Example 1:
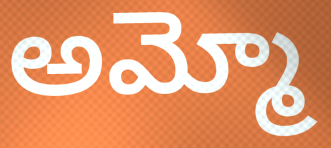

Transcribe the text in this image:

అమ్మో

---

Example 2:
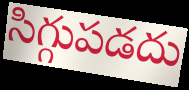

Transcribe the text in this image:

సిగ్గుపడదు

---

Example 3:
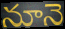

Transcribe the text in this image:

నూనె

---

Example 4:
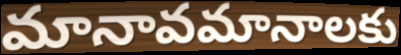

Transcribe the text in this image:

మానావమానాలకు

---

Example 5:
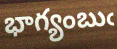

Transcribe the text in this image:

భాగ్యంబుఁ